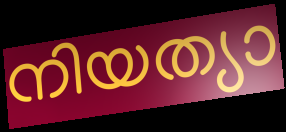
നിയത്യാ